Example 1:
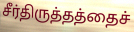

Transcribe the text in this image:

சீர்திருத்தத்தைச்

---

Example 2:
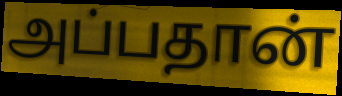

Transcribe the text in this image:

அப்பதான்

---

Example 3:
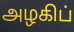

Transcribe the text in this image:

அழகிப்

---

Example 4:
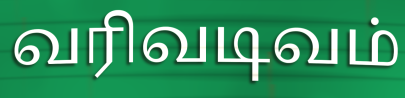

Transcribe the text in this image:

வரிவடிவம்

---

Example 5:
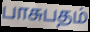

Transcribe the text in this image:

பாசுபதம்